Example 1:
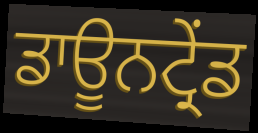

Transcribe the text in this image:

ਡਾਊਨਟ੍ਰੇਂਡ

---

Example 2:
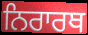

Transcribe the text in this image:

ਨਿਰਾਰਥ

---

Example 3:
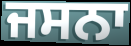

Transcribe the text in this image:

ਜਸਨਾ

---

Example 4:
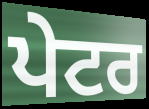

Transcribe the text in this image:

ਪੇਟਰ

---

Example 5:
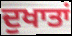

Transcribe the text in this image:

ਦੁਖਾਤਾਂ